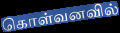
கொள்வனவில்